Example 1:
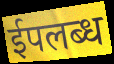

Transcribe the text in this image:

ईपलब्ध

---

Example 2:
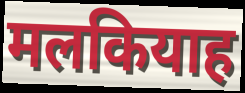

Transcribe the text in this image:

मलकियाह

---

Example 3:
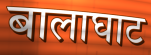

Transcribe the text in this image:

बालाघाट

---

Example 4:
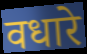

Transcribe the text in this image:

वधारे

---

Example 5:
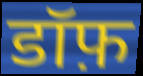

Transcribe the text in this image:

डॉफ़